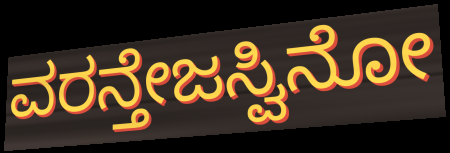
ವರನ್ತೇಜಸ್ವಿನೋ